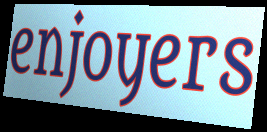
enjoyers